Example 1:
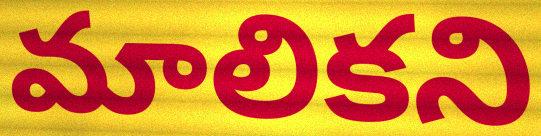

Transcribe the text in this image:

మాలికని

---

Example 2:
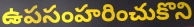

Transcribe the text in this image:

ఉపసంహరించుకొని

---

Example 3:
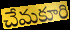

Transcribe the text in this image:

చేమకూరి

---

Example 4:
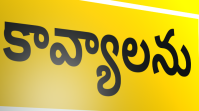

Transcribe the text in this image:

కావ్యాలను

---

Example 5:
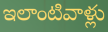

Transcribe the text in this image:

ఇలాంటివాళ్లు